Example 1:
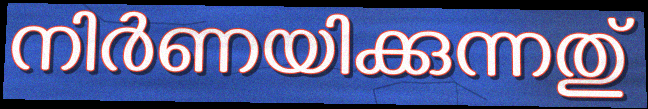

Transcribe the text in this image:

നിർണയിക്കുന്നതു്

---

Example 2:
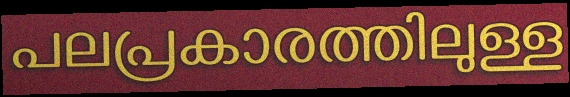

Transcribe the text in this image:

പലപ്രകാരത്തിലുള്ള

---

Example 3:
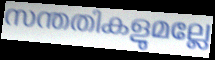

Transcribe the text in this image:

സന്തതികളുമല്ലേ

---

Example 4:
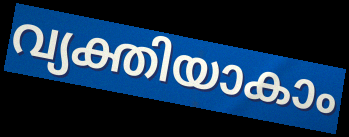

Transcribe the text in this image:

വ്യക്തിയാകാം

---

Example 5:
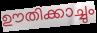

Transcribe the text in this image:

ഊതിക്കാച്ചും